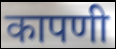
कापणी